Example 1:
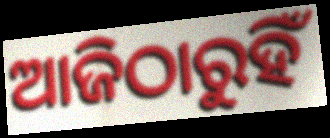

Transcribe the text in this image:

ଆଜିଠାରୁହିଁ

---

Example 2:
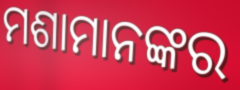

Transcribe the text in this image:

ମଶାମାନଙ୍କର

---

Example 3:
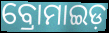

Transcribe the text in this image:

ବ୍ରୋମାଇଡ଼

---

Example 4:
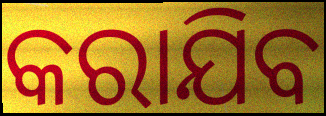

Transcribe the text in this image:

କରାଯିବ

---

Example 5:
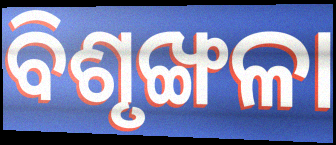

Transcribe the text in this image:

ବିଶୃଙ୍ଖଳା